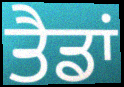
ਤੈਡਾਂ